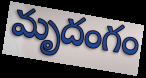
మృదంగం